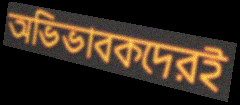
অভিভাবকদেরই